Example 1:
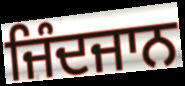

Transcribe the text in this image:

ਜਿੰਦਜਾਨ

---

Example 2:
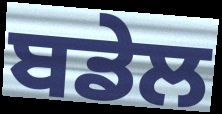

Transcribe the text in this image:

ਬਡੇਲ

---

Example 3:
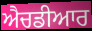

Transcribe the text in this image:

ਐਚਡੀਆਰ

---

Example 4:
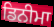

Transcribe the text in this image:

ਡਿਨੀਮਾ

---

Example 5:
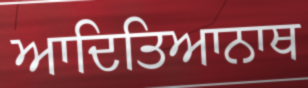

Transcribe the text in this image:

ਆਦਿਤਿਆਨਾਥ